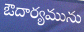
ఔదార్యమును